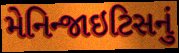
મેનિન્જાઇટિસનું